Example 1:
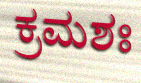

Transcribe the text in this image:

ಕ್ರಮಶಃ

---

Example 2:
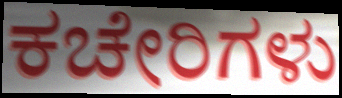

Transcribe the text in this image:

ಕಚೇರಿಗಳು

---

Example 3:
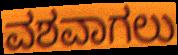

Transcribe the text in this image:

ವಶವಾಗಲು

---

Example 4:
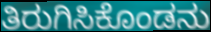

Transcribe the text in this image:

ತಿರುಗಿಸಿಕೊಂಡನು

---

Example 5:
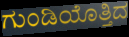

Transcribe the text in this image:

ಗುಂಡಿಯೊತ್ತಿದ